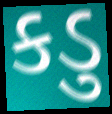
કડુ